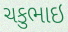
ચકુભાઇ